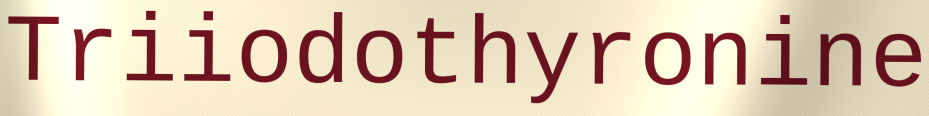
Triiodothyronine